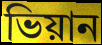
ভিয়ান